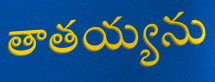
తాతయ్యను